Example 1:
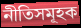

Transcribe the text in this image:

নীতিসমূহক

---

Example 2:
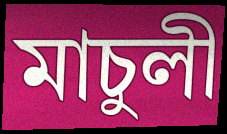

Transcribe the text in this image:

মাচুলী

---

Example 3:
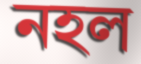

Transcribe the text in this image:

নহল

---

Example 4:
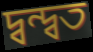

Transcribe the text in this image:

দ্বন্দ্বত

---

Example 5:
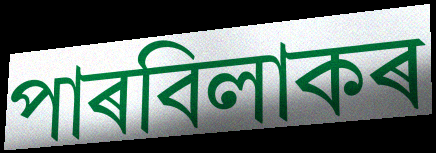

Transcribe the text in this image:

পাৰবিলাকৰ